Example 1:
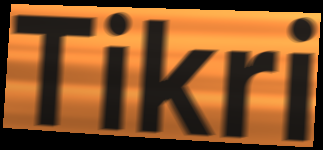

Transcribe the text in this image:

Tikri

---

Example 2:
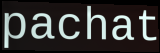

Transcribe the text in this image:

pachat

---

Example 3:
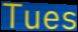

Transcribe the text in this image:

Tues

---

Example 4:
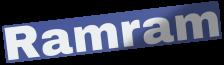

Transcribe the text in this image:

Ramram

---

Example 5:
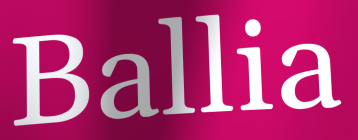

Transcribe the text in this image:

Ballia